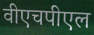
वीएचपीएल